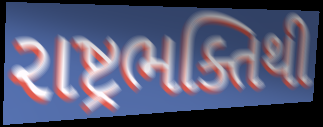
રાષ્ટ્રભક્તિથી